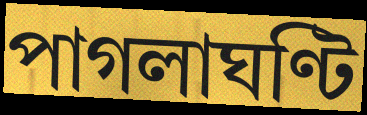
পাগলাঘণ্টি